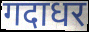
गदाधर